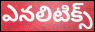
ఎనలిటిక్స్